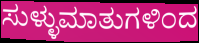
ಸುಳ್ಳುಮಾತುಗಳಿಂದ